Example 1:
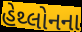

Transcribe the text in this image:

હેથ્લોનના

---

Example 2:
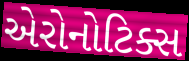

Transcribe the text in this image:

એરોનોટિક્સ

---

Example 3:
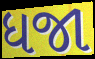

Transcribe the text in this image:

ધજા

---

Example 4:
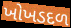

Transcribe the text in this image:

ખોખડદળ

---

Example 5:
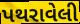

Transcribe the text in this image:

પથરાવેલી